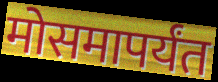
मोसमापर्यंत